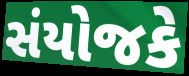
સંયોજકે